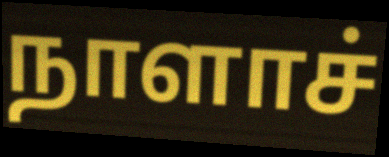
நாளாச்